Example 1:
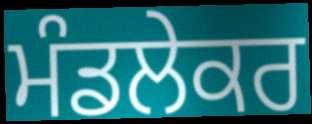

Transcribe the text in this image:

ਮੰਡਲੇਕਰ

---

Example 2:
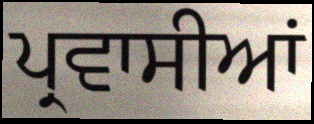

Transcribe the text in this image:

ਪ੍ਰਵਾਸੀਆਂ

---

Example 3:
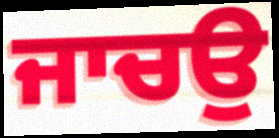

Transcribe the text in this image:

ਜਾਚਉ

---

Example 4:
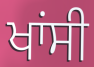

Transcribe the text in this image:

ਖਾਂਸੀ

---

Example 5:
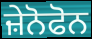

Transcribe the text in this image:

ਜ਼ੇਨੋਫੋਨ